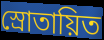
স্রোতায়িত